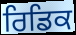
ਰਿਡਿਕ